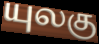
யுலகு